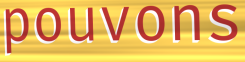
pouvons